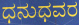
ಧನುಧವರ